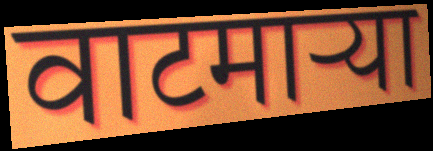
वाटमाऱ्या